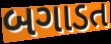
બગાડત